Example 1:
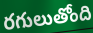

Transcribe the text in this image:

రగులుతోంది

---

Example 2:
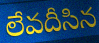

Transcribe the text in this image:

లేవదీసిన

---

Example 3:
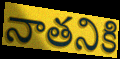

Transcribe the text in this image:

నాతనికి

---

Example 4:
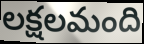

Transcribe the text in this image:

లక్షలమంది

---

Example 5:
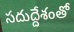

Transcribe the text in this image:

సదుద్దేశంతో